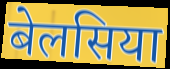
बेलसिया